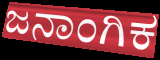
ಜನಾಂಗಿಕ